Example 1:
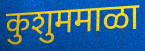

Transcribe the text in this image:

कुशुममाळा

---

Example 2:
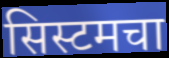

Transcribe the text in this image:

सिस्टमचा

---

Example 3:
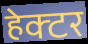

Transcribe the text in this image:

हेक्‍टर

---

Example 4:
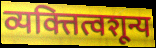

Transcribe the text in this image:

व्यक्तित्वशून्य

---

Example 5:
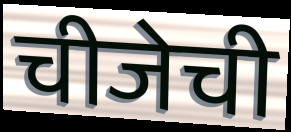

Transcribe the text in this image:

चीजेची